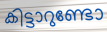
കിട്ടാറുണ്ടോ